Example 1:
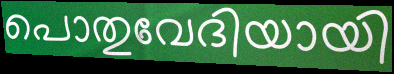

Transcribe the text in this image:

പൊതുവേദിയായി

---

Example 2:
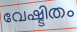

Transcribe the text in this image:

വേഷ്ടിതം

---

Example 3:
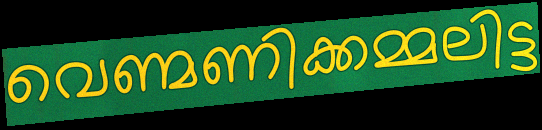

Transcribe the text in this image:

വെണ്മണിക്കമ്മലിട്ട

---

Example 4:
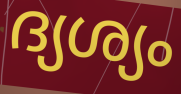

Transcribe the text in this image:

ദ്യശ്യം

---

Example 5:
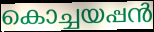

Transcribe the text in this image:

കൊച്ചയപ്പൻ